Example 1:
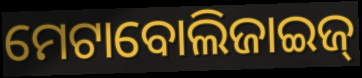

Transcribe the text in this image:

ମେଟାବୋଲିଜାଇଜ୍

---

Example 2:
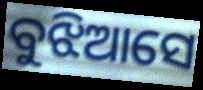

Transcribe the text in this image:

ବୁଝିଆସେ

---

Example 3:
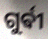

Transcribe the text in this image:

ଗୁର୍ଵୀ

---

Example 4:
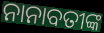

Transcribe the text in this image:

ନାନାବତୀଙ୍କ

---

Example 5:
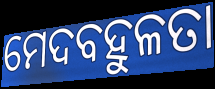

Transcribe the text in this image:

ମେଦବହୁଳତା